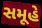
સમૂહે